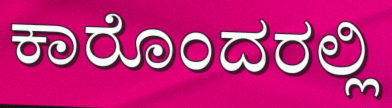
ಕಾರೊಂದರಲ್ಲಿ